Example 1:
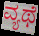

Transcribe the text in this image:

ವ್ಯಥೆ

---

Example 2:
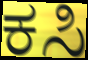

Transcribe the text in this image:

ಕಸಿ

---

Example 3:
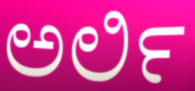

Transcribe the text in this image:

ಅರ್ಲಿ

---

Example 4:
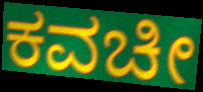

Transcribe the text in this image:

ಕವಚೀ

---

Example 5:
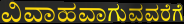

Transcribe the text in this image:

ವಿವಾಹವಾಗುವವರೆಗೆ